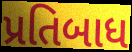
પ્રતિબાધ